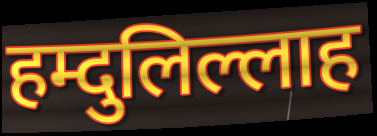
हम्दुलिल्लाह